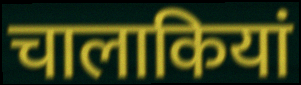
चालाकियां